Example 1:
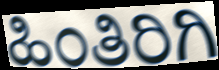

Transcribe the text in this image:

ಹಿಂತಿರಿಗಿ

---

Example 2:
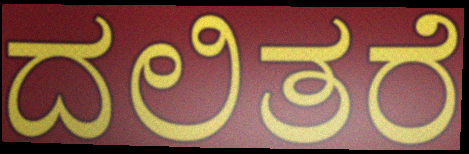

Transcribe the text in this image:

ದಲಿತರೆ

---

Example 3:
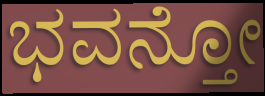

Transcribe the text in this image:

ಭವನ್ತೋ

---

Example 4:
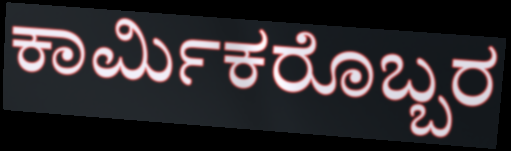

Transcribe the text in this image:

ಕಾರ್ಮಿಕರೊಬ್ಬರ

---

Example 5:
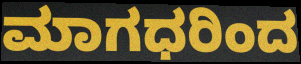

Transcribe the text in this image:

ಮಾಗಧರಿಂದ